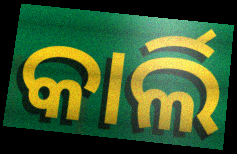
କାର୍ଲି